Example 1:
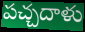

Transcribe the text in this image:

పచ్చదాళు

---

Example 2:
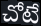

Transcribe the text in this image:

చోటే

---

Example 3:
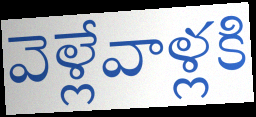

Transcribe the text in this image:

వెళ్లేవాళ్లకి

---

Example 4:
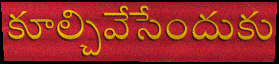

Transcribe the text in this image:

కూల్చివేసేందుకు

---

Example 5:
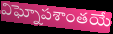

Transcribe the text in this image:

విఘ్నోపశాంతయే